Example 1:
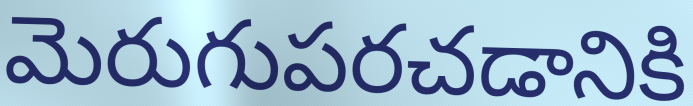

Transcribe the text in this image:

మెరుగుపరచడానికి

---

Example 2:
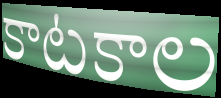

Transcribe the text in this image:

కాటకాల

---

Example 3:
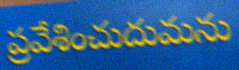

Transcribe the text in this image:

ప్రవేశించుదుమను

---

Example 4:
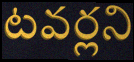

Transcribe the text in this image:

టవర్లని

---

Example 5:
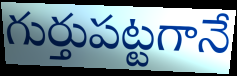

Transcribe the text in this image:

గుర్తుపట్టగానే